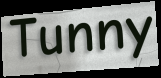
Tunny